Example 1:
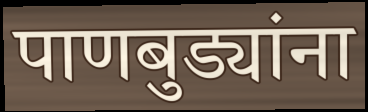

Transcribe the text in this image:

पाणबुड्यांना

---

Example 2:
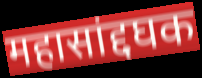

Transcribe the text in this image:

महासांद्दघक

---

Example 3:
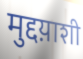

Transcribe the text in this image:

मुद्दय़ाशी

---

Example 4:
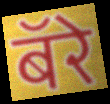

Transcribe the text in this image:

बॅरे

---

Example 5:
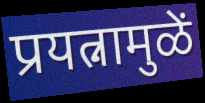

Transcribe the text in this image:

प्रयत्नामुळें